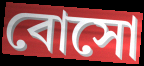
বোসো